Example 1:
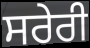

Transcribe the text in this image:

ਸਰੇਰੀ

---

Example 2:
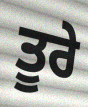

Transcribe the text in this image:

ਤੂਰੇ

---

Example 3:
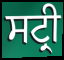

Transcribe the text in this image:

ਸਟ੍ਰੀ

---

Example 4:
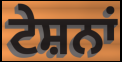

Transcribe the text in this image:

ਟੇਸ਼ਨਾਂ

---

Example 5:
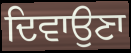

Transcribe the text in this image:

ਦਿਵਾਉਣਾ